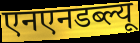
एनएनडब्ल्यू